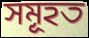
সমূহত